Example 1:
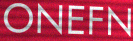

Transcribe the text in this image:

ONEFN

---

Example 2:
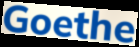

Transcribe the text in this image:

Goethe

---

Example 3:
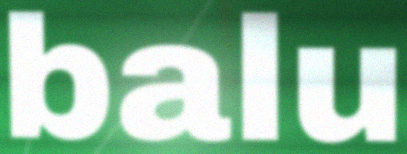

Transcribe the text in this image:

balu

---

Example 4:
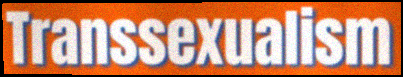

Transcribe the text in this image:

Transsexualism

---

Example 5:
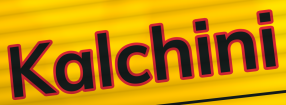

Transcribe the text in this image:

Kalchini